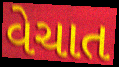
વેચાત